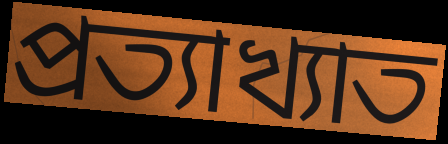
প্রত্যাখ্যাত